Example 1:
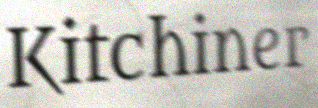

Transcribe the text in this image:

Kitchiner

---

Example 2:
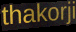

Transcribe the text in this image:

thakorji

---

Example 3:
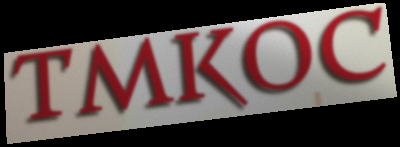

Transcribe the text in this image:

TMKOC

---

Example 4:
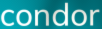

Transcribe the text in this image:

condor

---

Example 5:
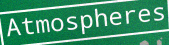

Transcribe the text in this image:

Atmospheres